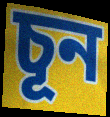
চূন